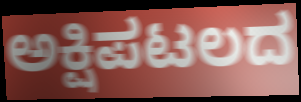
ಅಕ್ಷಿಪಟಲದ